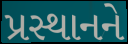
પ્રસ્થાનને